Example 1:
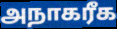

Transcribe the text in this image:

அநாகரீக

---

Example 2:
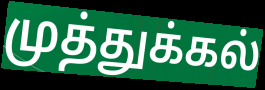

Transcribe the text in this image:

முத்துக்கல்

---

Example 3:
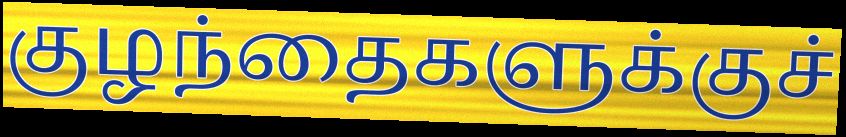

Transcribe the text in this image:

குழந்தைகளுக்குச்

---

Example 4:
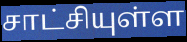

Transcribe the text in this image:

சாட்சியுள்ள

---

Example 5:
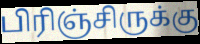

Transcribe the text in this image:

பிரிஞ்சிருக்கு